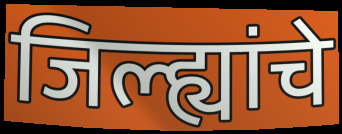
जिल्ह्यांचे